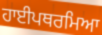
ਹਾਈਪਥਰਮਿਆ